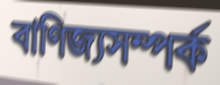
বাণিজ্যসম্পর্ক